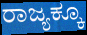
ರಾಜ್ಯಕ್ಕೂ